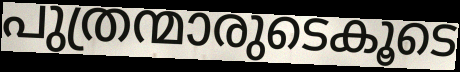
പുത്രന്മാരുടെകൂടെ